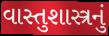
વાસ્તુશાસ્ત્રનું